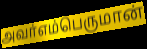
அவர்எம்பெருமான்